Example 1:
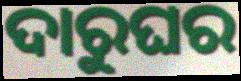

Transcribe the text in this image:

ଦାରୁଘର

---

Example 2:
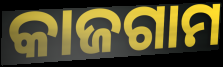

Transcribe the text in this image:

କାଜଗାମ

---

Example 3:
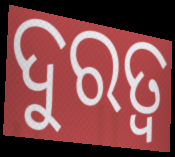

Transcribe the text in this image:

ଦୁରତ୍ଵ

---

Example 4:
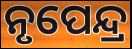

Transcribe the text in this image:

ନୃପେନ୍ଦ୍ର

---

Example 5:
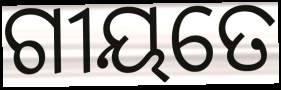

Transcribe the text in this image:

ଗୀୟତେ